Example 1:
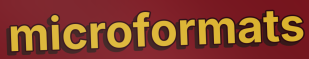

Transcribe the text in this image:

microformats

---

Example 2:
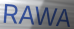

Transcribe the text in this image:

RAWA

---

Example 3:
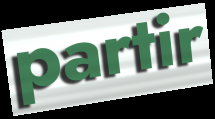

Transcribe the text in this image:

partir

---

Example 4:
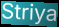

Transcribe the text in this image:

Striya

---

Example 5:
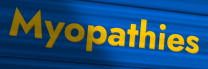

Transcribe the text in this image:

Myopathies